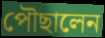
পৌছালেন